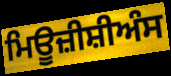
ਮਿਊਜ਼ੀਸ਼ੀਅੰਸ